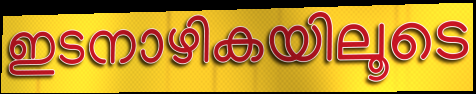
ഇടനാഴികയിലൂടെ